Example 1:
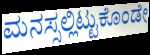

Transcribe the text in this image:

ಮನಸ್ಸಲ್ಲಿಟ್ಟುಕೊಂಡೇ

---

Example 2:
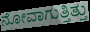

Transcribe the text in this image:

ನೋವಾಗುತ್ತಿತ್ತು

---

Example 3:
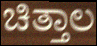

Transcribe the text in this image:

ಚಿತ್ತಾಲ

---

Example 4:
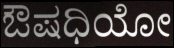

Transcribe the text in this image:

ಔಷಧಿಯೋ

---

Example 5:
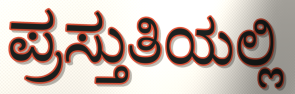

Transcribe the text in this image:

ಪ್ರಸ್ತುತಿಯಲ್ಲಿ